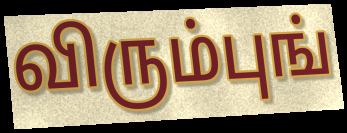
விரும்புங்